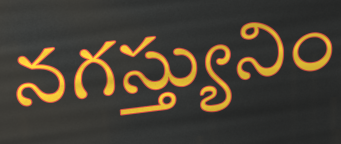
నగస్త్యునిం